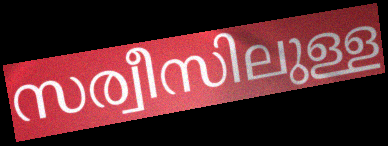
സര്വീസിലുള്ള